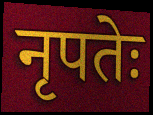
नृपतेः